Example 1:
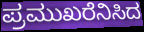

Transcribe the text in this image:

ಪ್ರಮುಖರೆನಿಸಿದ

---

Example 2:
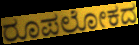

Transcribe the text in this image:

ರೂಪಲೋಕದ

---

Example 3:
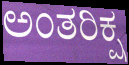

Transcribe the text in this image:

ಅಂತರಿಕ್ಷ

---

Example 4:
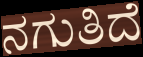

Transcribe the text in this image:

ನಗುತಿದೆ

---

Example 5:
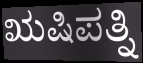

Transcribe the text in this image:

ಋಷಿಪತ್ನಿ